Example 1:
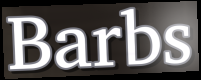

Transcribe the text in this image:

Barbs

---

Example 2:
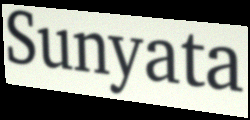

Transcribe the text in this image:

Sunyata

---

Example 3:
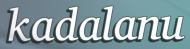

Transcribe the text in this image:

kadalanu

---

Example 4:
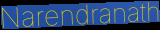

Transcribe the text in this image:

Narendranath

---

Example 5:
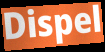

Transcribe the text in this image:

Dispel